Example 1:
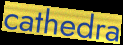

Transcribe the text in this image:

cathedra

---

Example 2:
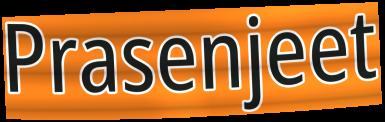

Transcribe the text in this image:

Prasenjeet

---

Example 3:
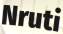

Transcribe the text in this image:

Nruti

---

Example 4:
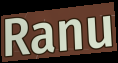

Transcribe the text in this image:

Ranu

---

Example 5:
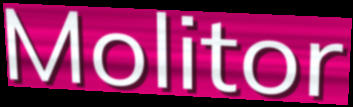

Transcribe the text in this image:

Molitor